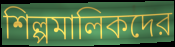
শিল্পমালিকদের